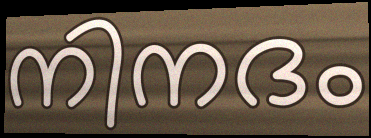
നിനദം